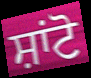
ਸ਼ਾਂਟੋ